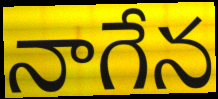
నాగేన